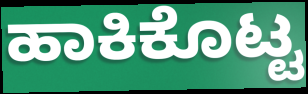
ಹಾಕಿಕೊಟ್ಟ